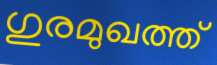
ഗുരമുഖത്ത്